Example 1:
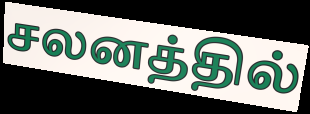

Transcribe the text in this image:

சலனத்தில்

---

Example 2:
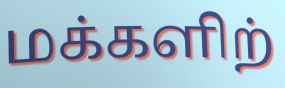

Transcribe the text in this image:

மக்களிற்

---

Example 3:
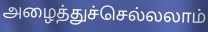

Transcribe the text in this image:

அழைத்துச்செல்லலாம்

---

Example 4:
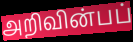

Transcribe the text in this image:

அறிவின்பப்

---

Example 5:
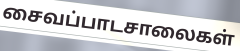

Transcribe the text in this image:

சைவப்பாடசாலைகள்